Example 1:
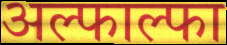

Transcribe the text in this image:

अल्फाल्फा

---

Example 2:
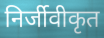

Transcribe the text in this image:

निर्जीवीकृत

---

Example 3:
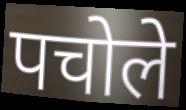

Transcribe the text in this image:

पचोले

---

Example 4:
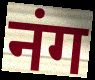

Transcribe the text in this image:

नंग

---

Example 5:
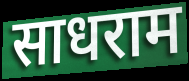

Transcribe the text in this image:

साधराम